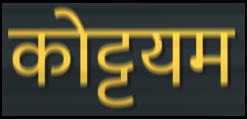
कोट्टयम